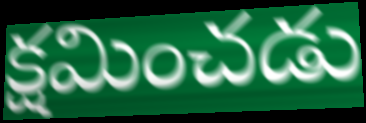
క్షమించడు